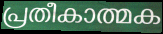
പ്രതീകാത്മക